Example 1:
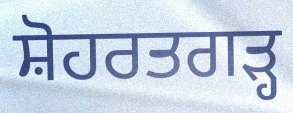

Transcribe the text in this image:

ਸ਼ੋਹਰਤਗੜ੍ਹ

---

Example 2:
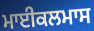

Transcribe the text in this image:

ਮਾਈਕਲਮਾਸ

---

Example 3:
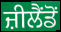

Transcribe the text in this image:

ਜ਼ੀਲੈਂਡੋਂ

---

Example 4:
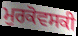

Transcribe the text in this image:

ਮੁਰਕੋਵਸਕੀ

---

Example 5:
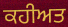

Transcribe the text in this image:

ਕਹੀਅਤ